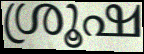
ശ്രൂഷ